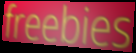
freebies